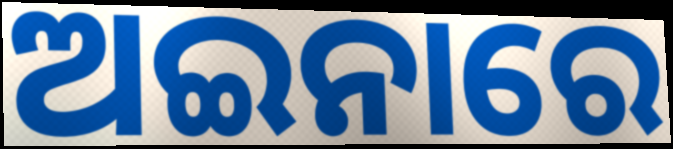
ଅଇନାରେ